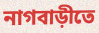
নাগবাড়ীতে